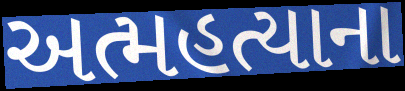
અત્મહત્યાના